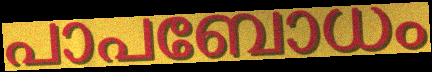
പാപബോധം